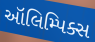
ઑલિમ્પિક્સ